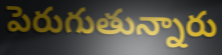
పెరుగుతున్నారు